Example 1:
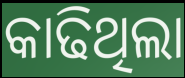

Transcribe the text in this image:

କାଢିଥିଲା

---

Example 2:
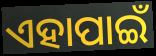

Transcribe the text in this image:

ଏହାପାଇଁ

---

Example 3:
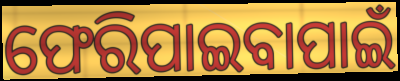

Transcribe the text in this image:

ଫେରିପାଇବାପାଇଁ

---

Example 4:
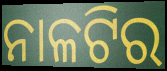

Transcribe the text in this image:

ନାଳଟିର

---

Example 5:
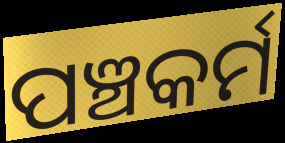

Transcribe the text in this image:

ପଞ୍ଚକର୍ମ